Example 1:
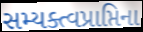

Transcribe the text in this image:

સમ્યક્ત્વપ્રાપ્તિના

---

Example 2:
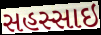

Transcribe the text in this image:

સહસ્સાઇ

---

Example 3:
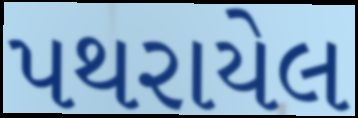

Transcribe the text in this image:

પથરાયેલ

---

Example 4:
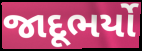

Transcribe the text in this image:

જાદૂભર્યો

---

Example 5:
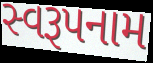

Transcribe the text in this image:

સ્વરૂપનામ